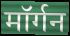
मॉर्गन